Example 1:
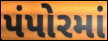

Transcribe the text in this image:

પંપોરમાં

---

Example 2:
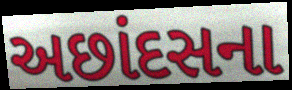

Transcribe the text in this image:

અછાંદસના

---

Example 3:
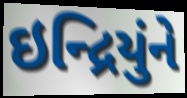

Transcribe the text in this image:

ઇન્દ્રિયુંને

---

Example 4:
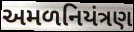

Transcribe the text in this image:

અમળનિયંત્રણ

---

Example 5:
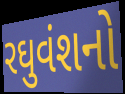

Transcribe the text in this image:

રઘુવંશનો